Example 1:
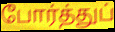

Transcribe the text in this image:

போர்த்துப்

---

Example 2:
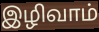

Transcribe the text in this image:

இழிவாம்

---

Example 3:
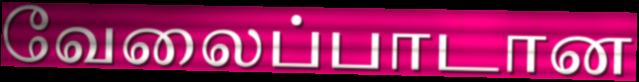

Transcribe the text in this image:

வேலைப்பாடான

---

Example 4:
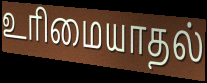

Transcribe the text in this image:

உரிமையாதல்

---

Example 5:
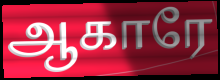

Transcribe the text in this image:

ஆகாரே